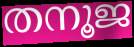
തനൂജ